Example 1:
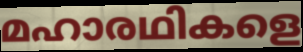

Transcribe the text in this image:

മഹാരഥികളെ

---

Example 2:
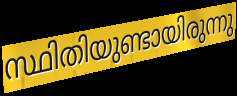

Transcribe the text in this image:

സ്ഥിതിയുണ്ടായിരുന്നു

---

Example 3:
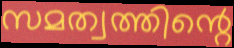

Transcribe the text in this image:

സമത്വത്തിന്റെ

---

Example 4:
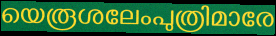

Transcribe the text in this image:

യെരൂശലേംപുത്രിമാരേ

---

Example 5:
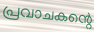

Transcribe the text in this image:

പ്രവാചകന്റെ